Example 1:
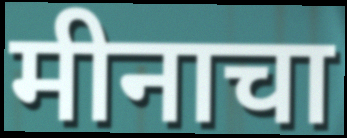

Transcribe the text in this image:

मीनाचा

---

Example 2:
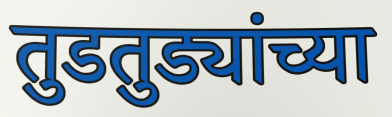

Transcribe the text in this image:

तुडतुड्यांच्या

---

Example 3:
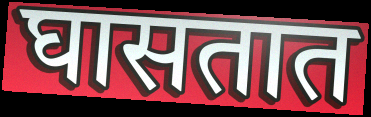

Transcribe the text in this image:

घासतात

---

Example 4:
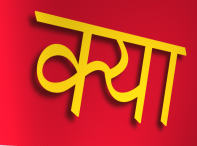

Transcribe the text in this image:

क्या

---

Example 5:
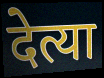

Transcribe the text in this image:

देत्या